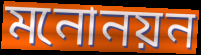
মনোনয়ন